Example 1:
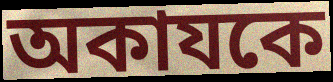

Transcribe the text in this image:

অকাযকে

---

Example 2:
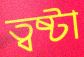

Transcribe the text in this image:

ত্বষ্টা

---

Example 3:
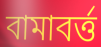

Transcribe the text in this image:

বামাবর্ত্ত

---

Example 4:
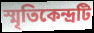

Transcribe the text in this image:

স্মৃতিকেন্দ্রটি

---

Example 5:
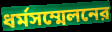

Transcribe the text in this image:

ধর্মসম্মেলনের